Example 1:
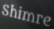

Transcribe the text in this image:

Shimre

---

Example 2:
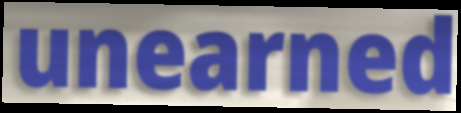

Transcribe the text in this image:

unearned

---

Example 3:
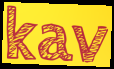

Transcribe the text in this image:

kav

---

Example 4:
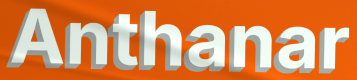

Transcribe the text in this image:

Anthanar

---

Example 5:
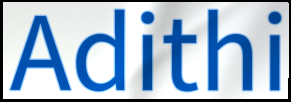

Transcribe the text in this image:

Adithi